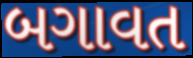
બગાવત